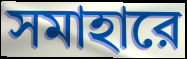
সমাহারে